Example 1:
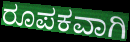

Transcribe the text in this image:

ರೂಪಕವಾಗಿ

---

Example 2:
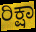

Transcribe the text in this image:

ರಿಕ್ಷಾ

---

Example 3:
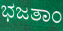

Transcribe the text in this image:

ಭಜತಾಂ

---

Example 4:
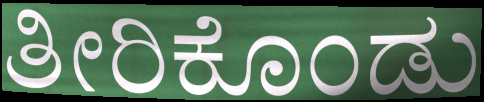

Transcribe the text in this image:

ತೀರಿಕೊಂಡು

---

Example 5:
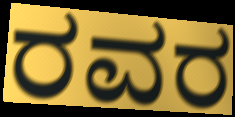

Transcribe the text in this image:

ರವರ